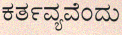
ಕರ್ತವ್ಯವೆಂದು